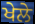
ਖੇਲੇ